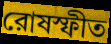
রোষস্ফীত